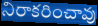
నిరాకరించావు